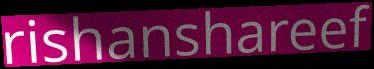
rishanshareef